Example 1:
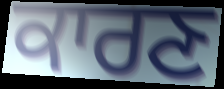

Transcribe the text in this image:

ਕਾਰਣ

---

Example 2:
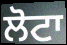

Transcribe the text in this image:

ਲੋਟਾ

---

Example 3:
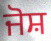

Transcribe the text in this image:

ਜੋਸ਼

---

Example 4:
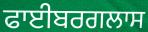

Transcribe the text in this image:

ਫਾਈਬਰਗਲਾਸ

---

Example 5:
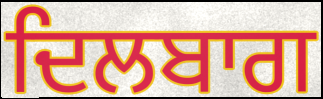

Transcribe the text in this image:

ਦਿਲਬਾਗ